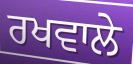
ਰਖਵਾਲੇ